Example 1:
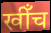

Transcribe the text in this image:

खीँच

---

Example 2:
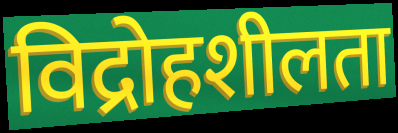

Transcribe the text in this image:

विद्रोहशीलता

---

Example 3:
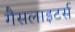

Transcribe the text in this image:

गैसलाइटर्स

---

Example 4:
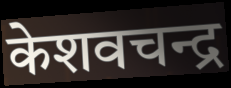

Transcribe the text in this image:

केशवचन्द्र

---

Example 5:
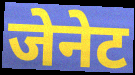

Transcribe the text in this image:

जेनेट